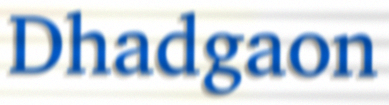
Dhadgaon